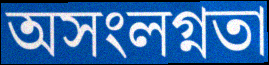
অসংলগ্নতা